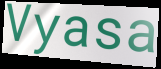
Vyasa